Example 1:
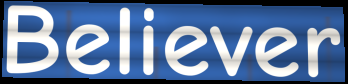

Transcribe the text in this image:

Believer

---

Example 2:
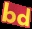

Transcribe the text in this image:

bd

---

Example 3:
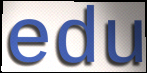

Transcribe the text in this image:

edu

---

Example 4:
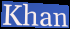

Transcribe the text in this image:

Khan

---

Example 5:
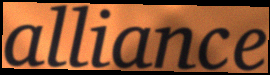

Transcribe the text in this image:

alliance